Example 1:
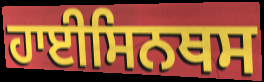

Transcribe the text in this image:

ਹਾਈਸਿਨਥਸ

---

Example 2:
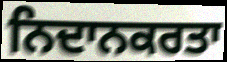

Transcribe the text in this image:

ਨਿਦਾਨਕਰਤਾ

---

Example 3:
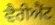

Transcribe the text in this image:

ਵੈਰੀਐਂਟ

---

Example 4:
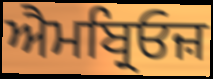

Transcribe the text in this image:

ਐਮਬ੍ਰਿਓਜ਼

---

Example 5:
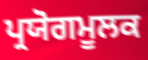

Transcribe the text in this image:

ਪ੍ਰਯੋਗਮੂਲਕ